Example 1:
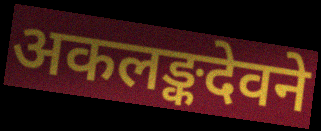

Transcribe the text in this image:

अकलङ्कदेवने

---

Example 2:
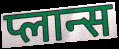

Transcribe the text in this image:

प्लान्स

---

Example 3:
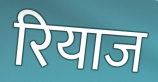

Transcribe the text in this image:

रियाज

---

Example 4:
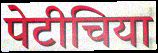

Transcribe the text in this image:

पेटीचिया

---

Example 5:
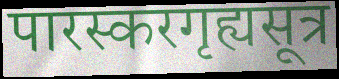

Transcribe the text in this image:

पारस्करगृह्यसूत्र